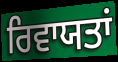
ਰਿਵਾਯਤਾਂ